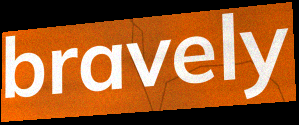
bravely